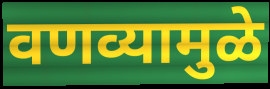
वणव्यामुळे